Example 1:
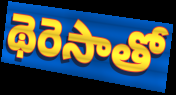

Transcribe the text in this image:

థెరెసాతో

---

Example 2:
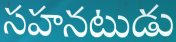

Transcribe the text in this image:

సహనటుడు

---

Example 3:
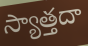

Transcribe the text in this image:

స్యాత్తదా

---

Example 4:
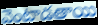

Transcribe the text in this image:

వెంటాడతాయి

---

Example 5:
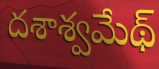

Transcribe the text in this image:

దశాశ్వమేథ్